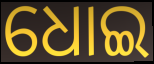
ଧୋଇ